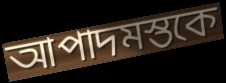
আপাদমস্তকে